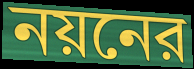
নয়নের